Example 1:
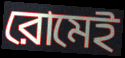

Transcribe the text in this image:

রোমেই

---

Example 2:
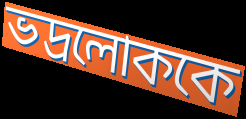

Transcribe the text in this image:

ভদ্রলোককে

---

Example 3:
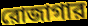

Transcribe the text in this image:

রোজাগার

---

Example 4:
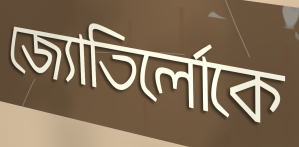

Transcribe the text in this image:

জ্যোতির্লোকে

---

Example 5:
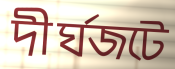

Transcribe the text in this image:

দীর্ঘজটে